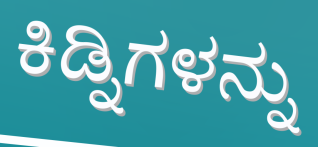
ಕಿಡ್ನಿಗಳನ್ನು